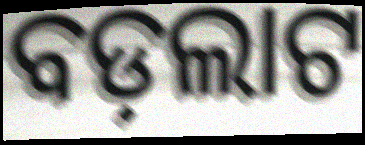
ବଡ଼ଲାଟ